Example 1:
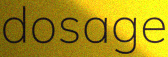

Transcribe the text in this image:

dosage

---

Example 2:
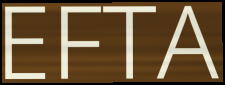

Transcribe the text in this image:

EFTA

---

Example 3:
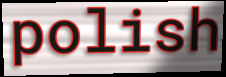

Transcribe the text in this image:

polish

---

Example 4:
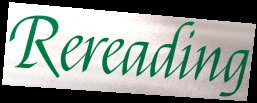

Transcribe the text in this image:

Rereading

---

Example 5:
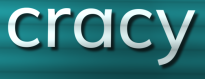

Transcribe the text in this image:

cracy